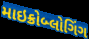
માઇક્રોબ્લોગિંગ